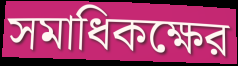
সমাধিকক্ষের